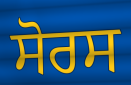
ਸੋਰਸ